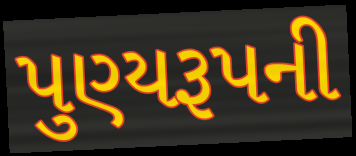
પુણ્યરૂપની